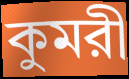
কুমরী